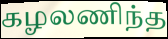
கழலணிந்த